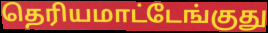
தெரியமாட்டேங்குது